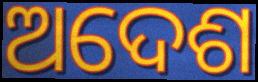
ଅଦେଶ